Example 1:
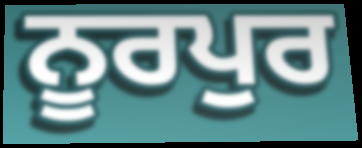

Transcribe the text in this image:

ਨੂਰਪੁਰ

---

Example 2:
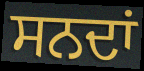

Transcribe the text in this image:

ਸਨਦਾਂ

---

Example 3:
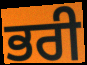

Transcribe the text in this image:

ਭਰੀ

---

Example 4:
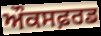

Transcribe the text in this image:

ਔਕਸਫ਼ਰਡ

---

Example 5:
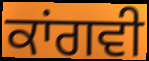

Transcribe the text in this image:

ਕਾਂਗਵੀ